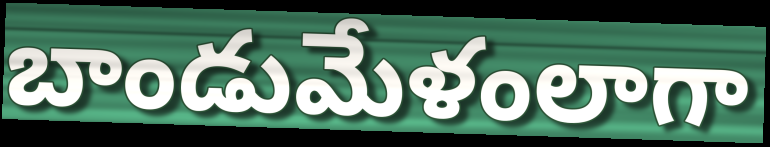
బాండుమేళంలాగా